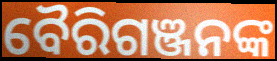
ବୈରିଗଞ୍ଜନଙ୍କ